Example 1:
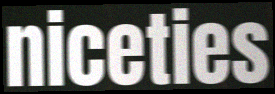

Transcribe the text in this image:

niceties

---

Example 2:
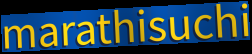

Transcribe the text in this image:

marathisuchi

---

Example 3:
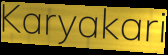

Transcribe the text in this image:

Karyakari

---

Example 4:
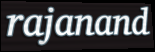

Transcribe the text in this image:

rajanand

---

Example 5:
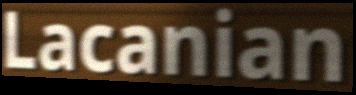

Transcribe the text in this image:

Lacanian